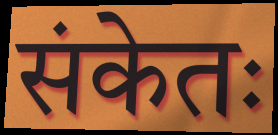
संकेतः